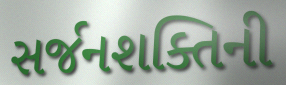
સર્જનશક્તિની